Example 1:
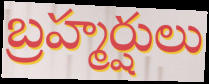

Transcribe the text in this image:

బ్రహ్మర్షులు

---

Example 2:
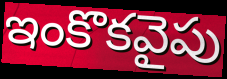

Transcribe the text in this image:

ఇంకొకవైపు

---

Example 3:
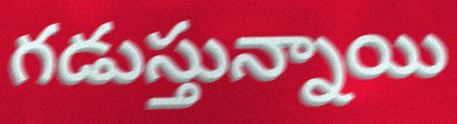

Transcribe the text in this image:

గడుస్తున్నాయి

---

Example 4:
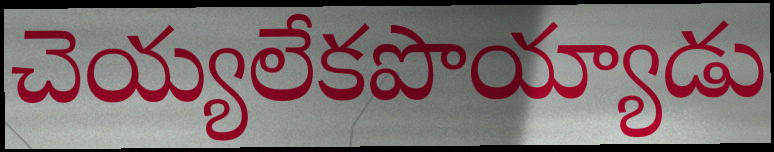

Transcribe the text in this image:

చెయ్యలేకపొయ్యాడు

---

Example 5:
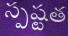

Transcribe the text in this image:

స్పష్టత